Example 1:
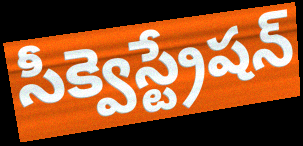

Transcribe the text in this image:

సీక్వెస్ట్రేషన్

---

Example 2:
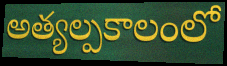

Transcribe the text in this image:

అత్యల్పకాలంలో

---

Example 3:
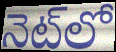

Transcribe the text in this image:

నెట్‌లో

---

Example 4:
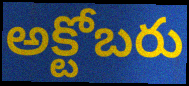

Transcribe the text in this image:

అక్టోబరు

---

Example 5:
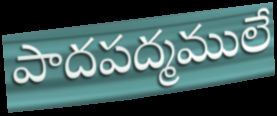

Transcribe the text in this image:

పాదపద్మములే